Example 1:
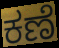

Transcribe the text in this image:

ಕಣೆ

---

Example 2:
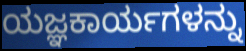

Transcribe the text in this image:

ಯಜ್ಞಕಾರ್ಯಗಳನ್ನು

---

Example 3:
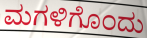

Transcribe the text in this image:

ಮಗಳಿಗೊಂದು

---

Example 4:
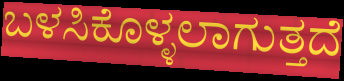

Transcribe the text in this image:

ಬಳಸಿಕೊಳ್ಳಲಾಗುತ್ತದೆ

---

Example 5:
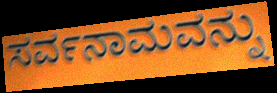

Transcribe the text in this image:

ಸರ್ವನಾಮವನ್ನು